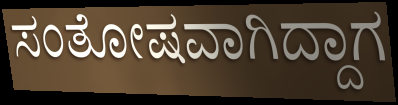
ಸಂತೋಷವಾಗಿದ್ದಾಗ